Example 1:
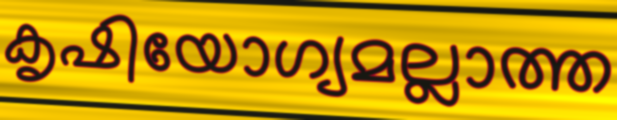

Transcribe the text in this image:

കൃഷിയോഗ്യമല്ലാത്ത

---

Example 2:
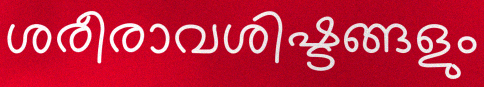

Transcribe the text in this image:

ശരീരാവശിഷ്ടങ്ങളും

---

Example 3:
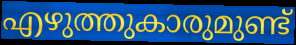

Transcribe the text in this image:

എഴുത്തുകാരുമുണ്ട്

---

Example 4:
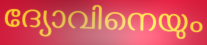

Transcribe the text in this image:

ദ്യോവിനെയും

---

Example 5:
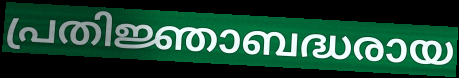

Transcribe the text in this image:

പ്രതിജ്ഞാബദ്ധരായ